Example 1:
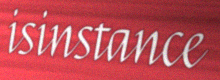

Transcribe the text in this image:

isinstance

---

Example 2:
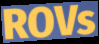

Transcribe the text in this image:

ROVs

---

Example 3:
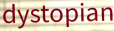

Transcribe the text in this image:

dystopian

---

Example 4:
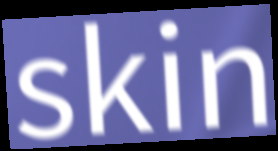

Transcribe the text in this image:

skin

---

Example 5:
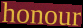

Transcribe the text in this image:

honour